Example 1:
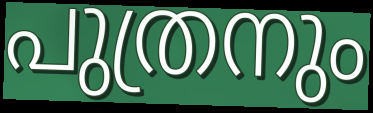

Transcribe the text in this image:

പുത്രനും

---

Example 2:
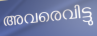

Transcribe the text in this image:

അവരെവിട്ടു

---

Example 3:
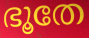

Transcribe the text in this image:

ഭൂതേ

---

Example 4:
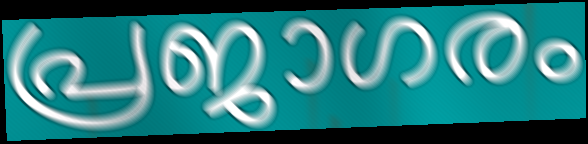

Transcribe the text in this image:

പ്രജാഗരം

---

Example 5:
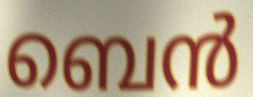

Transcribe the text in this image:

ബെൻ